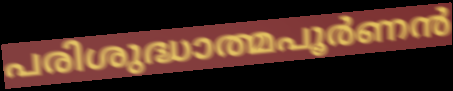
പരിശുദ്ധാത്മപൂർണൻ